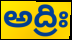
అద్రిః